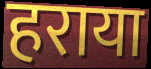
हराया